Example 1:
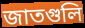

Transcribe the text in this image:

জাতগুলি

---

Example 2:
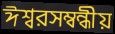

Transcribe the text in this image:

ঈশ্বরসম্বন্ধীয়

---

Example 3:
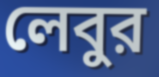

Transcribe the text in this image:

লেবুর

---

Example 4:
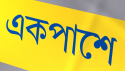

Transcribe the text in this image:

একপাশে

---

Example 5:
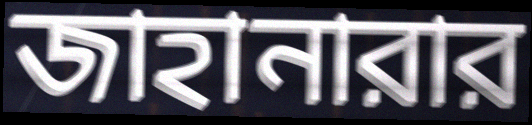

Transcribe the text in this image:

জাহানারার